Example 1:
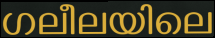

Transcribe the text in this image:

ഗലീലയിലെ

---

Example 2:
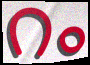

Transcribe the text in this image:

റം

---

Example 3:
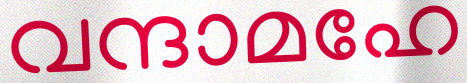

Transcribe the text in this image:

വന്ദാമഹേ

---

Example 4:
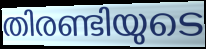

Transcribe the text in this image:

തിരണ്ടിയുടെ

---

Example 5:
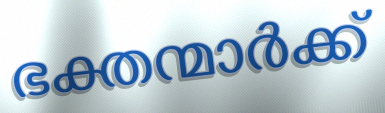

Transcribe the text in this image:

ഭക്തന്മാർക്ക്